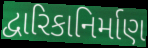
દ્વારિકાનિર્માણ